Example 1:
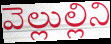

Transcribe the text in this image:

వెల్లుల్లిని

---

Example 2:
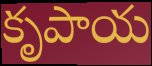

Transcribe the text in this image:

కృపాయ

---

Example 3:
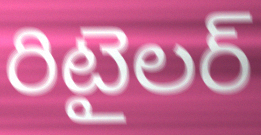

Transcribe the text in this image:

రిటైలర్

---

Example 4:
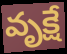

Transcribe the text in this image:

వృక్షే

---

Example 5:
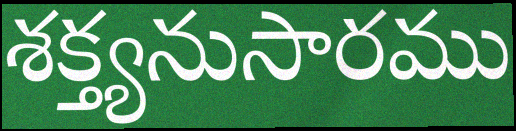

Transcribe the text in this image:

శక్త్యనుసారము